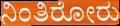
ನಿಂತಿರೋರು